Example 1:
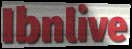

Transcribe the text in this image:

Ibnlive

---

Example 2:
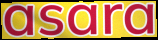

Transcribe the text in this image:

asara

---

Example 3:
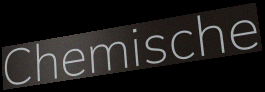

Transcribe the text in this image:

Chemische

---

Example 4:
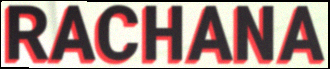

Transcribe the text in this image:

RACHANA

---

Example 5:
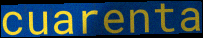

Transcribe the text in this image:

cuarenta